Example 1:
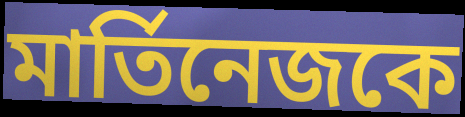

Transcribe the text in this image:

মার্তিনেজকে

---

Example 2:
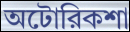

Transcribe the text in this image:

অটোরিকশা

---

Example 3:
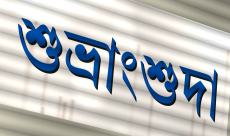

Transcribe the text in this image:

শুভ্রাংশুদা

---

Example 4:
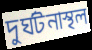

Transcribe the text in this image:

দুর্ঘটনাস্থল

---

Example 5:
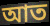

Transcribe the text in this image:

আত